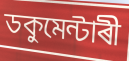
ডকুমেন্টাৰী